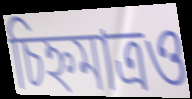
চিহ্নমাত্রও